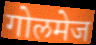
गोलमेज